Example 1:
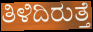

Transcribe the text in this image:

ತಿಳಿದಿರುತ್ತೆ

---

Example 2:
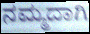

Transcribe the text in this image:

ನಮ್ಮದಾಗಿ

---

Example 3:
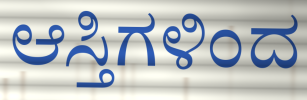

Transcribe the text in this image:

ಆಸ್ತಿಗಳಿಂದ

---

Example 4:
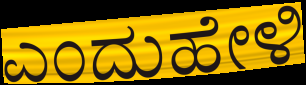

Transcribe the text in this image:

ಎಂದುಹೇಳಿ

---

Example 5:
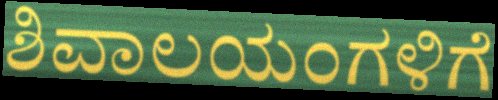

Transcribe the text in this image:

ಶಿವಾಲಯಂಗಳಿಗೆ